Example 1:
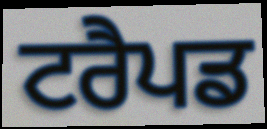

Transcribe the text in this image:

ਟਰੈਪਡ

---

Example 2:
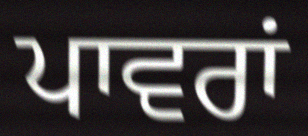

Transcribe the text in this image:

ਪਾਵਰਾਂ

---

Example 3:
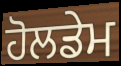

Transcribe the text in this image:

ਹੋਲਡੇਮ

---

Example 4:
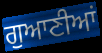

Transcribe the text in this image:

ਗੁਆਣੀਆਂ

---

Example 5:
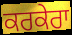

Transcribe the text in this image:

ਕਰਕੇਰਾ